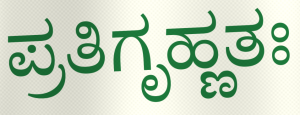
ಪ್ರತಿಗೃಹ್ಣತಃ